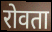
रोवता